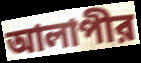
আলাপীর